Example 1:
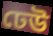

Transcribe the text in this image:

ঢেউ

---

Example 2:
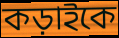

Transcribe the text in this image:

কড়াইকে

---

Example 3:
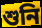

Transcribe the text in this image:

শুনি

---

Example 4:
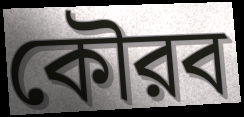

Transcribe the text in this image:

কৌরব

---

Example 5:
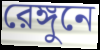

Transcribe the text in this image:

রেঙ্গুনে